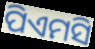
ପିଏମସି